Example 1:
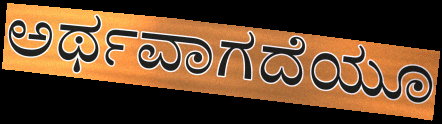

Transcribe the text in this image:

ಅರ್ಥವಾಗದೆಯೂ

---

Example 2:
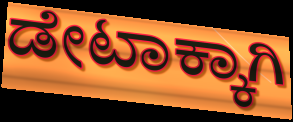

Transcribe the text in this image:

ಡೇಟಾಕ್ಕಾಗಿ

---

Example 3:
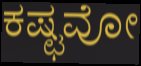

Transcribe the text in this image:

ಕಷ್ಟವೋ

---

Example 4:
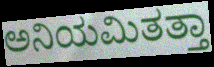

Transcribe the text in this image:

ಅನಿಯಮಿತತ್ತಾ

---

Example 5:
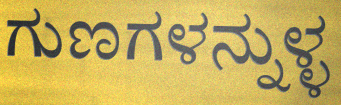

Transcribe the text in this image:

ಗುಣಗಳನ್ನುಳ್ಳ